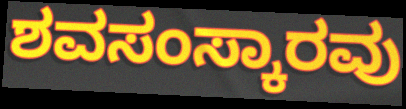
ಶವಸಂಸ್ಕಾರವು